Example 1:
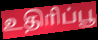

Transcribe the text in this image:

உதிரிப்பூ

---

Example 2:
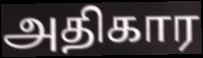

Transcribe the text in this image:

அதிகார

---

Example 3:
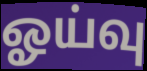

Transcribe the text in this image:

ஓய்வு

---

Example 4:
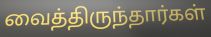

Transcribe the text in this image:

வைத்திருந்தார்கள்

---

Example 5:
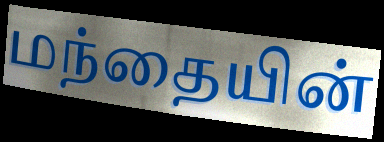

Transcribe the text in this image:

மந்தையின்